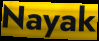
Nayak